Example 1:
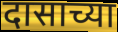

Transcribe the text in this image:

दासाच्या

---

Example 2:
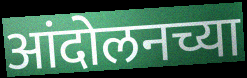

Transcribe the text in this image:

आंदोलनच्या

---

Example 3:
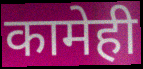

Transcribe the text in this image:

कामेही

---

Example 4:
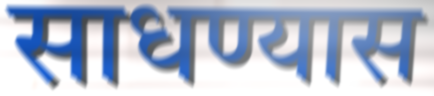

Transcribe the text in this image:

साधण्यास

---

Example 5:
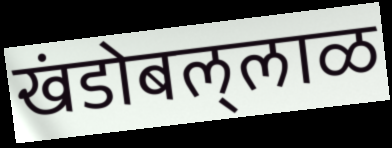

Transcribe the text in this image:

खंडोबल्लाळ